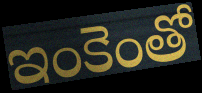
ఇంకెంతో